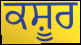
ਕਸ਼ੂਰ